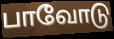
பாவோடு